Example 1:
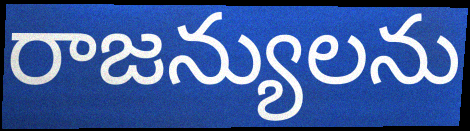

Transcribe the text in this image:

రాజన్యులను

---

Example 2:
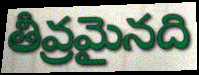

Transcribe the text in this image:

తీవ్రమైనది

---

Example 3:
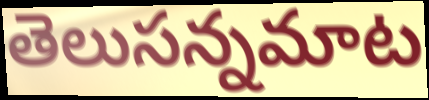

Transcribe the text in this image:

తెలుసన్నమాట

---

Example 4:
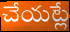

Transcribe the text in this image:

చేయట్లే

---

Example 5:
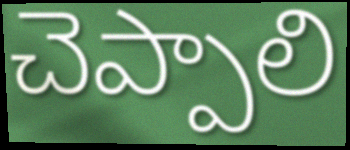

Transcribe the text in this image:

చెప్పాలి